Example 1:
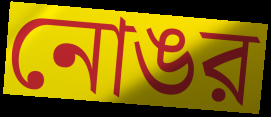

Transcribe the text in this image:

নোঙর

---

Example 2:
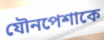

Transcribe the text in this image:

যৌনপেশাকে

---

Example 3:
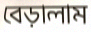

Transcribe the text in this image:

বেড়ালাম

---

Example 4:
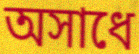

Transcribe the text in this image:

অসাধে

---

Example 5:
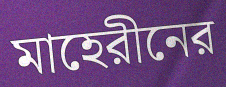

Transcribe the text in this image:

মাহেরীনের